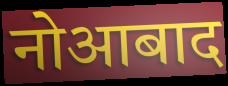
नोआबाद